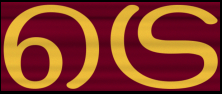
ട്രെ